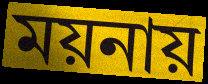
ময়নায়